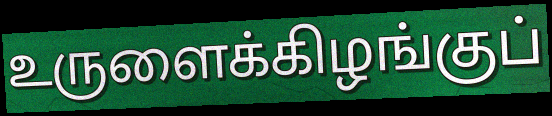
உருளைக்கிழங்குப்